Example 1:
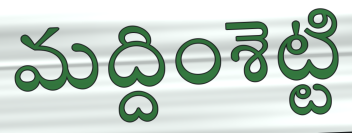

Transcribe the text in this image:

మద్దింశెట్టి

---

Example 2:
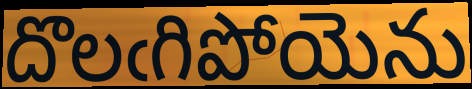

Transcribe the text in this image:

దొలఁగిపోయెను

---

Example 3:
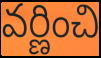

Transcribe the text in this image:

వర్ణించి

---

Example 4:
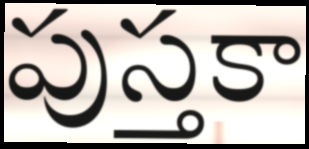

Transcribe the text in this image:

పుస్తకా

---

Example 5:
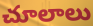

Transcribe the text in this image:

చూలాలు